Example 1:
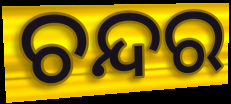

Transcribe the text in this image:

ଚନ୍ଦର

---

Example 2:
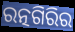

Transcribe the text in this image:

ରତ୍ନଗିରିର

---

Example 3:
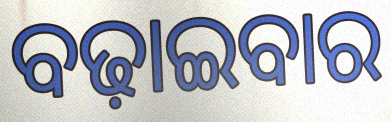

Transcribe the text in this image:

ବଢ଼ାଇବାର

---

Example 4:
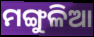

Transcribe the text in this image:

ମଙ୍ଗୁଳିଆ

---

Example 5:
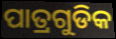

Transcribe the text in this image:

ପାତ୍ରଗୁଡିକ